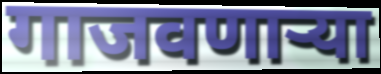
गाजवणाऱ्या